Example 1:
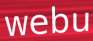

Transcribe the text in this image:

webu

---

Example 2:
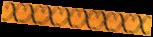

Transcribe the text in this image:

XXXXXXXX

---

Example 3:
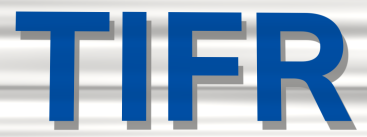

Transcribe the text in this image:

TIFR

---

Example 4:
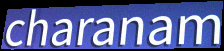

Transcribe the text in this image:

charanam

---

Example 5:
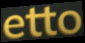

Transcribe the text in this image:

etto